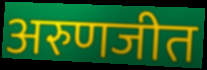
अरुणजीत